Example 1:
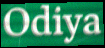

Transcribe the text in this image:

Odiya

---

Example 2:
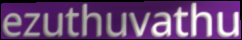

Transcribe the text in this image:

ezuthuvathu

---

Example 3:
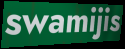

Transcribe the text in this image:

swamijis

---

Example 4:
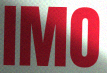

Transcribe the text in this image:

IMO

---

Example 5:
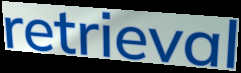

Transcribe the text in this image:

retrieval